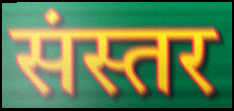
संस्तर